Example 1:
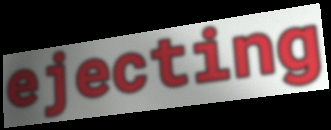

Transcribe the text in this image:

ejecting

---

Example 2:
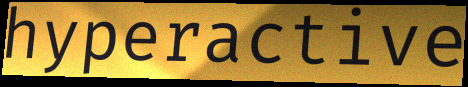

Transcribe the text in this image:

hyperactive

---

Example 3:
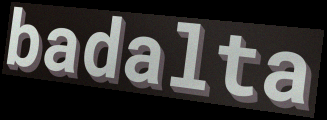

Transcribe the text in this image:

badalta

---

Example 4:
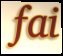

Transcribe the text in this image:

fai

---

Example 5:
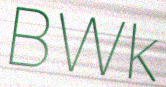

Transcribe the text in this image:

BWk